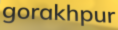
gorakhpur